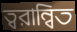
ত্বরান্বিত